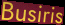
Busiris